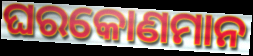
ଘରକୋଣମାନ